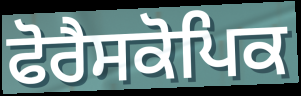
ਫੋਰੈਸਕੋਪਿਕ